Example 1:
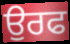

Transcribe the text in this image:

ਉਰਫ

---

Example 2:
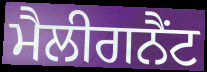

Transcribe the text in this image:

ਮੈਲੀਗਨੈਂਟ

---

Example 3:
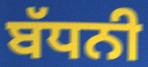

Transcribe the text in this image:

ਬੱਧਨੀ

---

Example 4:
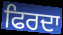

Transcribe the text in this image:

ਫਿਰਦਾ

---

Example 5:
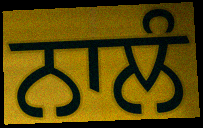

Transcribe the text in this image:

ਨਾਲੰ